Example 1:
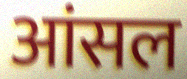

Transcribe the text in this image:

आंसल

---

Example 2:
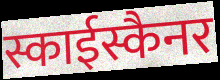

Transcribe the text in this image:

स्काईस्कैनर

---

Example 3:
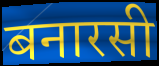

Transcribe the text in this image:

बनारसी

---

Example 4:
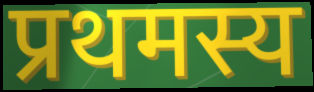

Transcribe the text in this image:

प्रथमस्य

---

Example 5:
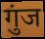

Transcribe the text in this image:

गुंज